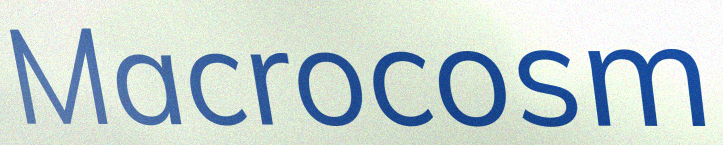
Macrocosm